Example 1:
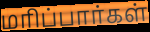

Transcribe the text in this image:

மரிப்பார்கள்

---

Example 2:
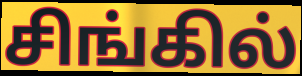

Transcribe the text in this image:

சிங்கில்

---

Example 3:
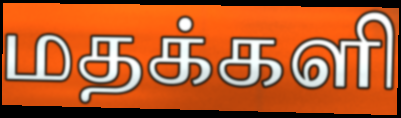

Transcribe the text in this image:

மதக்களி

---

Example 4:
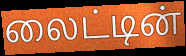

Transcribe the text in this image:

லைட்டின்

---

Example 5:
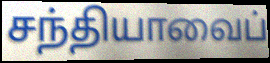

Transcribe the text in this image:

சந்தியாவைப்